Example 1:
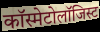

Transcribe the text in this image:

कॉस्मेटोलॉजिस्ट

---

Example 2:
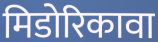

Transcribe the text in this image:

मिडोरिकावा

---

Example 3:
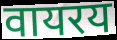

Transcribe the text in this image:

वायरय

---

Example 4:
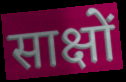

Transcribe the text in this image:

साक्षों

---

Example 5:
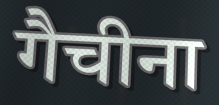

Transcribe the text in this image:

गैचीना